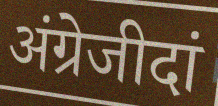
अंग्रेजीदां